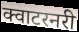
क्वाटरनरी